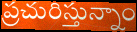
ప్రచురిస్తున్నాం